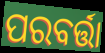
ପରବର୍ତ୍ତା